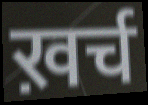
ख़र्च